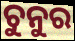
ଚୁନୁର